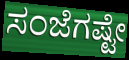
ಸಂಜೆಗಷ್ಟೇ